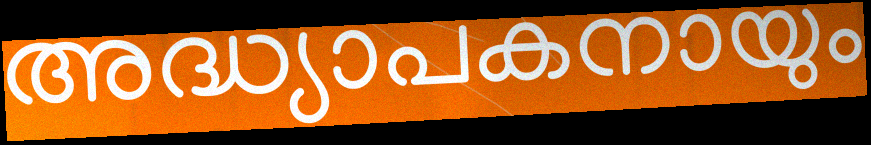
അദ്ധ്യാപകനായും